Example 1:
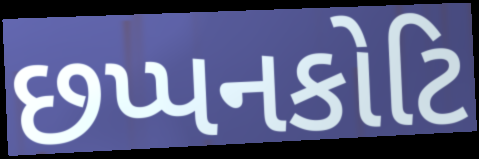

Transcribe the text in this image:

છપ્પનકોટિ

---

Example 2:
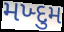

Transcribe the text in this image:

મખ્દુમ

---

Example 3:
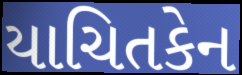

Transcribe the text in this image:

યાચિતકેન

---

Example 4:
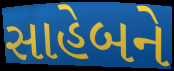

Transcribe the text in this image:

સાહેબને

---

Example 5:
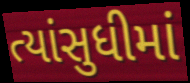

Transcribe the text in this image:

ત્યાંસુધીમાં